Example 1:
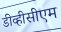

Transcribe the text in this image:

डीव्हीसीएम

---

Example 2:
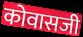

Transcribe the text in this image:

कोवासजी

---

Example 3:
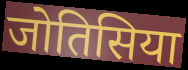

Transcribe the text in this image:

जोतिसिया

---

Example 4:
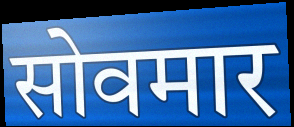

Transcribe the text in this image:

सोवमार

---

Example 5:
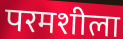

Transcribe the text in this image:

परमशीला